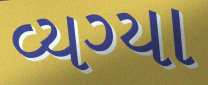
વ્યગ્યા